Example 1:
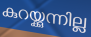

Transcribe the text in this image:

കുറയ്ക്കുന്നില്ല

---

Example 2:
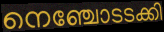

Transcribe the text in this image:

നെഞ്ചോടടക്കി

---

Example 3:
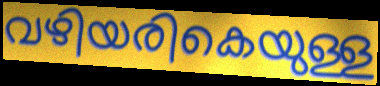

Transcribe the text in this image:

വഴിയരികെയുള്ള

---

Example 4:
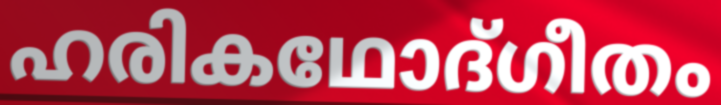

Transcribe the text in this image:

ഹരികഥോദ്ഗീതം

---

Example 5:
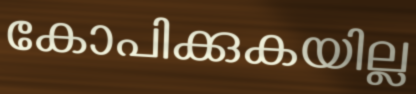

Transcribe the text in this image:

കോപിക്കുകയില്ല